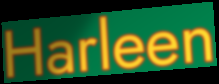
Harleen